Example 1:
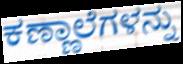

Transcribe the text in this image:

ಕಣ್ಣಾಲೆಗಳನ್ನು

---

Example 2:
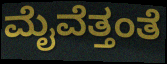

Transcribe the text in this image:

ಮೈವೆತ್ತಂತೆ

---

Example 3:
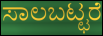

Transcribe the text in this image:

ಸಾಲಬಟ್ಟರೆ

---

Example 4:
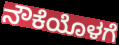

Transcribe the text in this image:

ನೌಕೆಯೊಳಗೆ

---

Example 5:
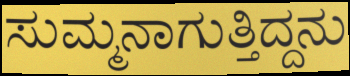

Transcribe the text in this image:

ಸುಮ್ಮನಾಗುತ್ತಿದ್ದನು